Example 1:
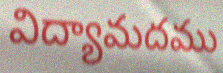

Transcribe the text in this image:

విద్యామదము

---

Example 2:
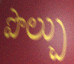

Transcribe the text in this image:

పొల్చు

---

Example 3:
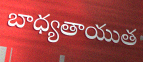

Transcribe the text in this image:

బాధ్యతాయుత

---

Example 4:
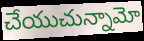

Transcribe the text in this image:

చేయుచున్నామో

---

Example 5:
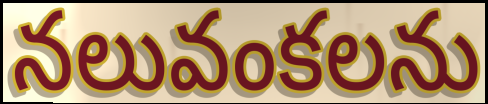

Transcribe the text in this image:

నలువంకలను